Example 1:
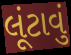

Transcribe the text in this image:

લૂંટાવું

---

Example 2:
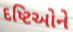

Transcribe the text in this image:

દષ્ટિઓને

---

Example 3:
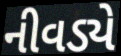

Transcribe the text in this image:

નીવડ્યે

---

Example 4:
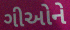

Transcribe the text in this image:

ગીઓને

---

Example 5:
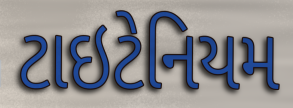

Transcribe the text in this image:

ટાઇટેનિયમ